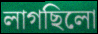
লাগছিলো